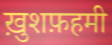
ख़ुशफ़हमी